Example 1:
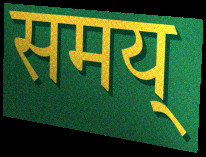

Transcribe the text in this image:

समय्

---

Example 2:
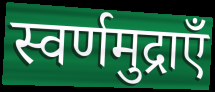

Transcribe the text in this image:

स्वर्णमुद्राएँ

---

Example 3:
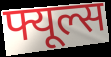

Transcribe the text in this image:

फ्यूल्स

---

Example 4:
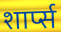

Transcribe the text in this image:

शार्प्स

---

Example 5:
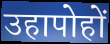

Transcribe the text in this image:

उहापोहों